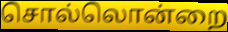
சொல்லொன்றை